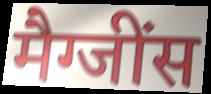
मैग्जींस